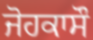
ਜੋਹਕਾਸੌ